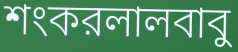
শংকরলালবাবু